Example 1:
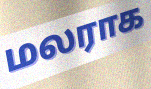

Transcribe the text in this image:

மலராக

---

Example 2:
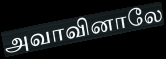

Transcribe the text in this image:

அவாவினாலே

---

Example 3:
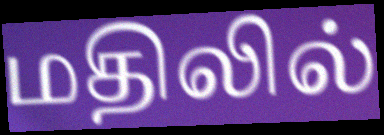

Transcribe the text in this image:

மதிலில்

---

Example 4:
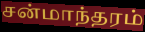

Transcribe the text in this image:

சன்மாந்தரம்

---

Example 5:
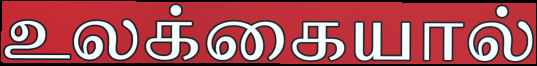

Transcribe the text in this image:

உலக்கையால்